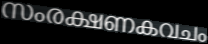
സംരക്ഷണകവചം